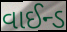
વાઈન્ડ